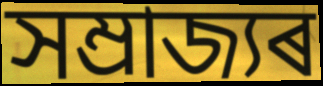
সম্ৰাজ্যৰ